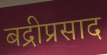
बद्रीप्रसाद